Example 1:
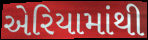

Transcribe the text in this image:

એરિયામાંથી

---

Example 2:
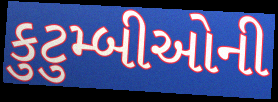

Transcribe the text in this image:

કુટુમ્બીઓની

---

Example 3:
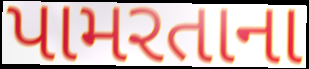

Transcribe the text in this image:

પામરતાના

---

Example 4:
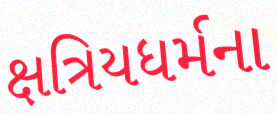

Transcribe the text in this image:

ક્ષત્રિયધર્મના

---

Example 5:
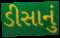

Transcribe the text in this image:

ડીસાનું